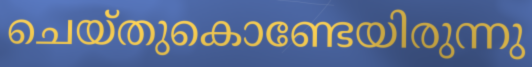
ചെയ്തുകൊണ്ടേയിരുന്നു